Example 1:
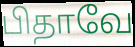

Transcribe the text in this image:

பிதாவே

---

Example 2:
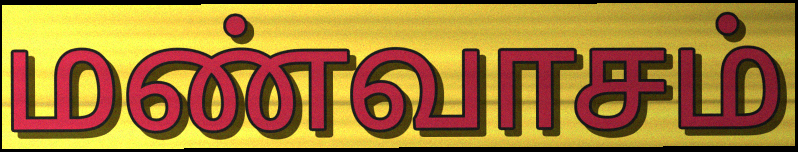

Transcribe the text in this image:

மண்வாசம்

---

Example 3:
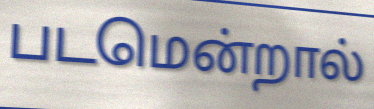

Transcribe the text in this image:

படமென்றால்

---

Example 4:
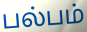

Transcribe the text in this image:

பல்பம்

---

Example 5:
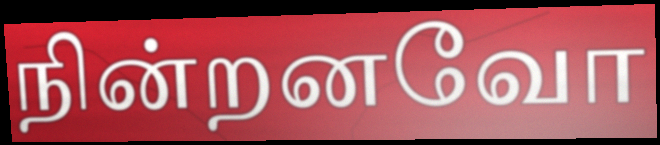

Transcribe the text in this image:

நின்றனவோ